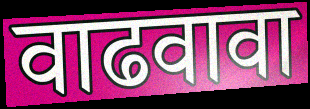
वाढवावा